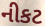
નીકટ